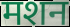
मशन